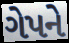
ગેપને